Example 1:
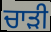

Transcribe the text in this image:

ਚਾਡ਼ੀ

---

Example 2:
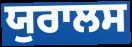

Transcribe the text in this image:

ਯੁਰਾਲਸ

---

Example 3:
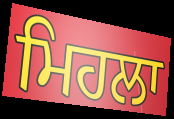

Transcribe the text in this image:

ਮਿਹਲਾ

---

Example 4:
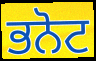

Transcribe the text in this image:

ਭਨੋਟ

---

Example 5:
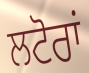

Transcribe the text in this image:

ਲਟੋਰਾਂ